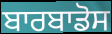
ਬਾਰਬਾਡੋਸ